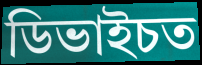
ডিভাইচত